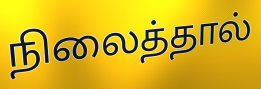
நிலைத்தால்